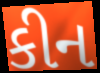
કીન